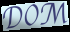
DOM